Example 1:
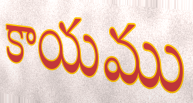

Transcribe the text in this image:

కాయము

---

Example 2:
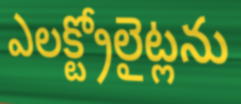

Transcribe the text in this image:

ఎలక్ట్రోలైట్లను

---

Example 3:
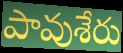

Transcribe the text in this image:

పావుశేరు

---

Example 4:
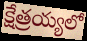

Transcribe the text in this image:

క్షేత్రయ్యలో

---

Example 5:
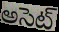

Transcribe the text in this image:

అసెట్